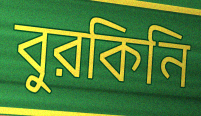
বুরকিনি